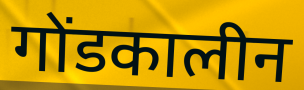
गोंडकालीन